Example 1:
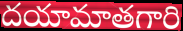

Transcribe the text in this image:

దయామాతగారి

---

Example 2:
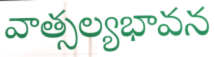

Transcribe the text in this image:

వాత్సల్యభావన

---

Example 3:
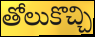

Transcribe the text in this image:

తోలుకొచ్చి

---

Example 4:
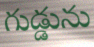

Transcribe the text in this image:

గుడ్డును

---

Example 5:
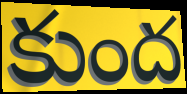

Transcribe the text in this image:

కుంద